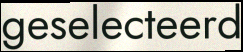
geselecteerd